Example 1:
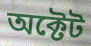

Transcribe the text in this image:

অক্টেট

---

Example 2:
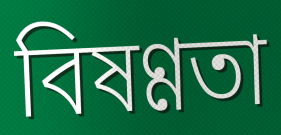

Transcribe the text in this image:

বিষণ্ণতা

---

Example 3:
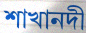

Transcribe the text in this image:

শাখানদী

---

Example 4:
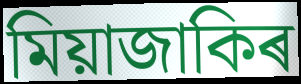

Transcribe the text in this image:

মিয়াজাকিৰ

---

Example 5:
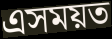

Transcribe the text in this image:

এসময়ত